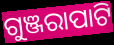
ଗୁଞ୍ଜରାପାଟି